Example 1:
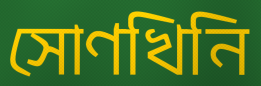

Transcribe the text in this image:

সোণখিনি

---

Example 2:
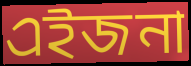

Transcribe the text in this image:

এইজনা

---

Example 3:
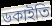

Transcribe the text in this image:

ডকাইতি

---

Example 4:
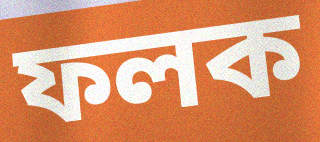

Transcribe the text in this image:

ফলক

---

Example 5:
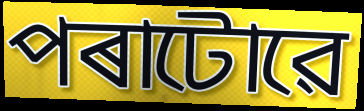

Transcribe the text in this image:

পৰাটোৱে